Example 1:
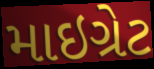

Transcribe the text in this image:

માઇગ્રેટ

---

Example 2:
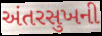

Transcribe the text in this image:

અંતરસુખની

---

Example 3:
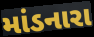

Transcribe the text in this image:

માંડનારા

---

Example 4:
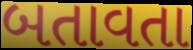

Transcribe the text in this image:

બતાવતા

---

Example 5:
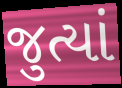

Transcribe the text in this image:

જુત્યાં